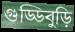
গুড্ডিবুড়ি